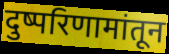
दुष्परिणामांतून